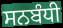
ਸਨਬੰਧੀ